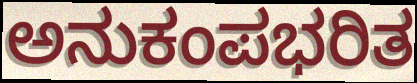
ಅನುಕಂಪಭರಿತ